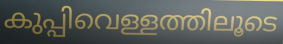
കുപ്പിവെള്ളത്തിലൂടെ